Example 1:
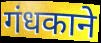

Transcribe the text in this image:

गंधकाने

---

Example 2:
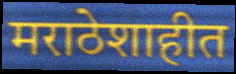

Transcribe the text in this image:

मराठेशाहीत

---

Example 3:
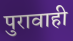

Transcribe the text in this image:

पुरावाही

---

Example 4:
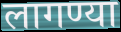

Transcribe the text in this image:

लागण्या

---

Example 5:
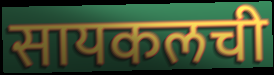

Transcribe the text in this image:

सायकलची